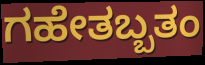
ಗಹೇತಬ್ಬತಂ